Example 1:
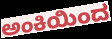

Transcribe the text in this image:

ಅಂಕಿಯಿಂದ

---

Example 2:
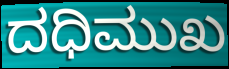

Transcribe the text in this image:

ದಧಿಮುಖ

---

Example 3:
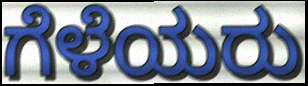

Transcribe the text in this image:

ಗೆಳೆಯರು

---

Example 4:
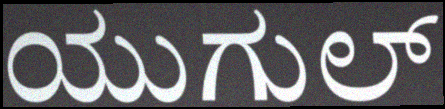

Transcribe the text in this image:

ಯುಗುಲ್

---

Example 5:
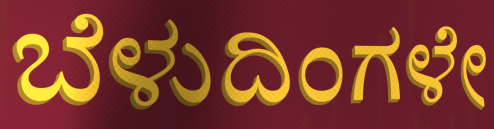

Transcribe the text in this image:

ಬೆಳುದಿಂಗಳೇ